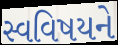
સ્વવિષયને